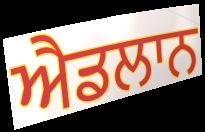
ਐਡਲਾਨ